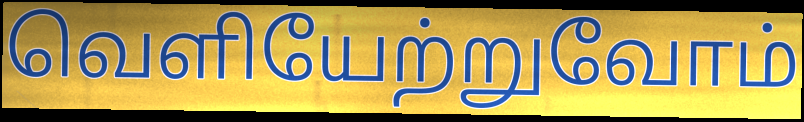
வெளியேற்றுவோம்